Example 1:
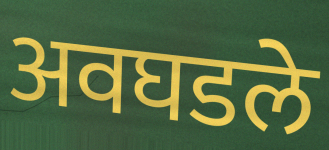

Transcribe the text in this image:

अवघडले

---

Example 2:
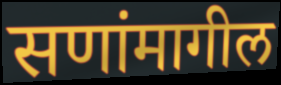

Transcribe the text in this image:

सणांमागील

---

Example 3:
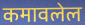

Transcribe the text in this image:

कमावलेल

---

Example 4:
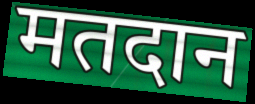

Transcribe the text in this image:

मतदान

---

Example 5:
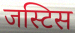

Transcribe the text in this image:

जस्टिस